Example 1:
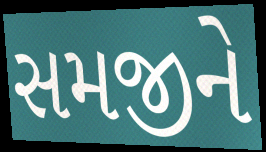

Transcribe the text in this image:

સમજીને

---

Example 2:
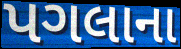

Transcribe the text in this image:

પગલાના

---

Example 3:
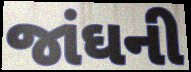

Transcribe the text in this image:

જાંઘની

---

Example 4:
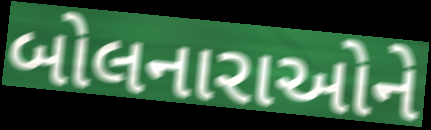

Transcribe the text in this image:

બોલનારાઓને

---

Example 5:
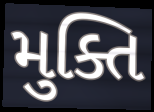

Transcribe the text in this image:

મુક્તિ